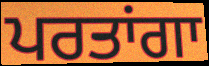
ਪਰਤਾਂਗਾ